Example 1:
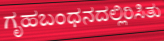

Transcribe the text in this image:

ಗೃಹಬಂಧನದಲ್ಲಿರಿಸಿತು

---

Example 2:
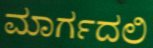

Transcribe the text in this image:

ಮಾರ್ಗದಲಿ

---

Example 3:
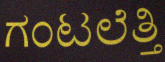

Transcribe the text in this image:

ಗಂಟಲೆತ್ತಿ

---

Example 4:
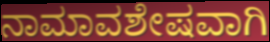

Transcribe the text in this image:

ನಾಮಾವಶೇಷವಾಗಿ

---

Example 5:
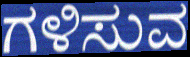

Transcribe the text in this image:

ಗಳಿಸುವ